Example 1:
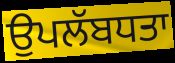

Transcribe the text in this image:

ਉਪਲੱਬਧਤਾ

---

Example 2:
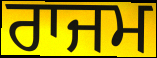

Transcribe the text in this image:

ਰਾਜਮ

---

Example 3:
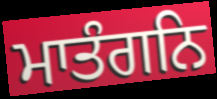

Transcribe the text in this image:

ਮਾਤੰਗਨਿ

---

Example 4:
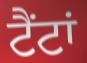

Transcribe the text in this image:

ਟੈਂਟਾਂ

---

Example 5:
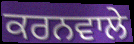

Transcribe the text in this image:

ਕਰਨਵਾਲੇ